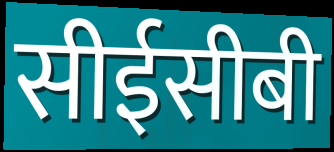
सीईसीबी